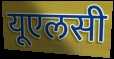
यूएलसी